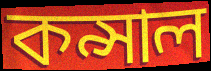
কন্সাল